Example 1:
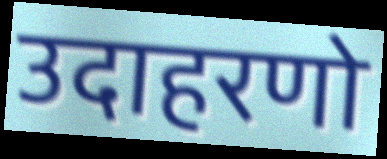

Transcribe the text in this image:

उदाहरणो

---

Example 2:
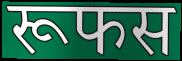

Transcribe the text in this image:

रूफस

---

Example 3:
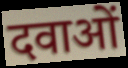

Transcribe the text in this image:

दवाओं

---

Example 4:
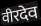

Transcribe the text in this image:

वीरदेव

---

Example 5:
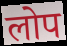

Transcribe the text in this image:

लोप